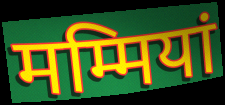
मम्मियां